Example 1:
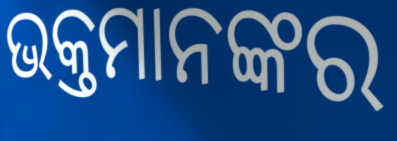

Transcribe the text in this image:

ଭକ୍ତମାନଙ୍କର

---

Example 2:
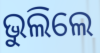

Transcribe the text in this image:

ଭୁଲିଲେ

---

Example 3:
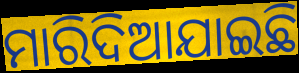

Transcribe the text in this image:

ମାରିଦିଆଯାଇଛି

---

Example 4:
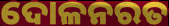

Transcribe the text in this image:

ଦୋଳନରତ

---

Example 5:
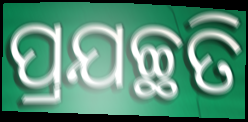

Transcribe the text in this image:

ପ୍ରଯଚ୍ଛତି